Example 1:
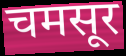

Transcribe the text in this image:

चमसूर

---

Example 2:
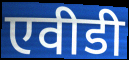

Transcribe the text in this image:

एवीडी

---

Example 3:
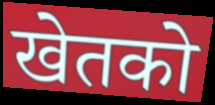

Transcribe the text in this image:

खेतको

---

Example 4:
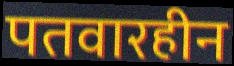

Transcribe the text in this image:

पतवारहीन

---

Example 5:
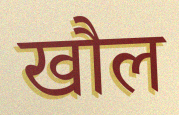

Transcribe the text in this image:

खौल